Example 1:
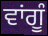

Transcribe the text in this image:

ਵਾਂਗੂੰ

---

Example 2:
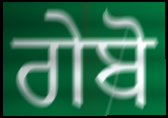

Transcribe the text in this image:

ਗੇਬੋ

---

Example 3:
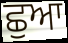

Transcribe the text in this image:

ਛੁਆ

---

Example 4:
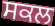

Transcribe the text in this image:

ਸਕਲ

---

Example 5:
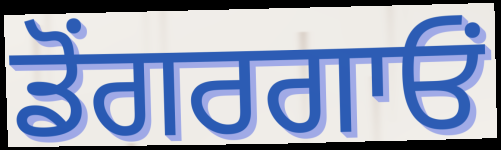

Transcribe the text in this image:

ਡੋਂਗਰਗਾਓਂ